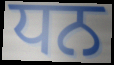
ਧਨ